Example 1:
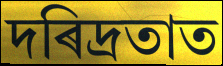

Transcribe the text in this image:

দৰিদ্ৰতাত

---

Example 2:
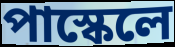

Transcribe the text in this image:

পাস্কেলে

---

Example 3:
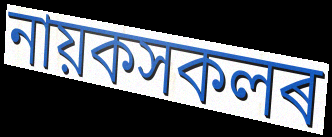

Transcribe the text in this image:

নায়কসকলৰ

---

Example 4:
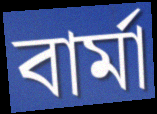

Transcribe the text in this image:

বাৰ্মা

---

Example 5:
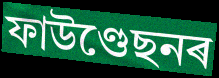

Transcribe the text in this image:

ফাউণ্ডেছনৰ